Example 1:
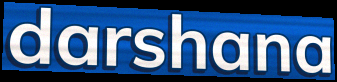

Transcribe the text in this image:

darshana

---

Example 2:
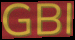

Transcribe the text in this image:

GBI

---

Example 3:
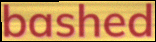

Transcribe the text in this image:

bashed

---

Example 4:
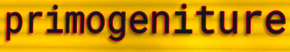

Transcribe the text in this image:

primogeniture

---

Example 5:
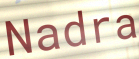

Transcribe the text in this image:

Nadra